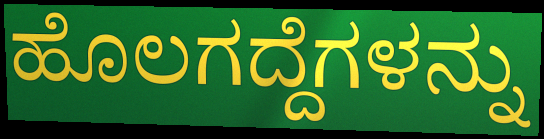
ಹೊಲಗದ್ದೆಗಳನ್ನು